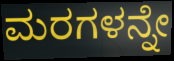
ಮರಗಳನ್ನೇ